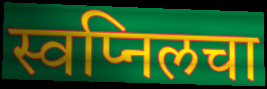
स्वप्निलचा